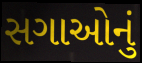
સગાઓનું